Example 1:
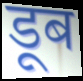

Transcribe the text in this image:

डूब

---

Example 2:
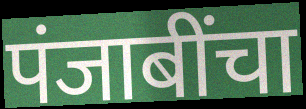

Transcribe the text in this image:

पंजाबींचा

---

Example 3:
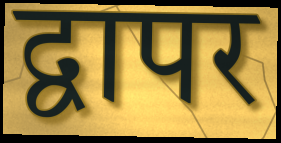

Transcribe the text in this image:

द्वापर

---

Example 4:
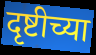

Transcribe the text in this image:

दृष्टीच्या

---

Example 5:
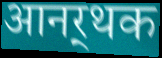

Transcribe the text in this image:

आनर्थक